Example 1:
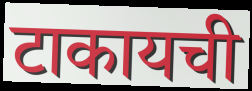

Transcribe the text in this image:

टाकायची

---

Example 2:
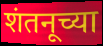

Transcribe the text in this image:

शंतनूच्या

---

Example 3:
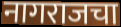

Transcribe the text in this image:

नागराजचा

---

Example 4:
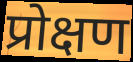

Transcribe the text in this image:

प्रोक्षण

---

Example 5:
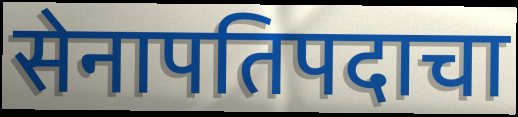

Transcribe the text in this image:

सेनापतिपदाचा